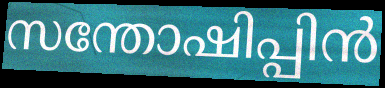
സന്തോഷിപ്പിൻ